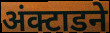
अंक्टाडने